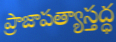
ప్రాజాపత్యాస్తద్ధ